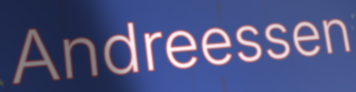
Andreessen